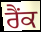
ਰੈੰਕ